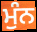
ਮੁੰਨ